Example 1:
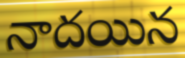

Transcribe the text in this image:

నాదయిన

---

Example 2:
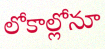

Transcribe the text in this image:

లోకాల్లోనూ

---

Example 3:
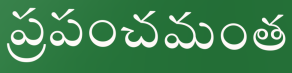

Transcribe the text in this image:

ప్రపంచమంత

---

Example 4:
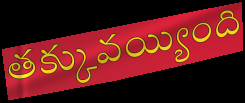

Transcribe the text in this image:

తక్కువయ్యింది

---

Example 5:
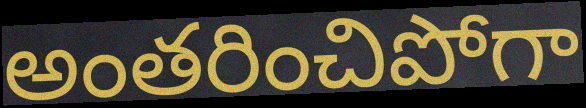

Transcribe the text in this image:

అంతరించిపోగా